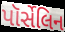
પૉર્સેલિન